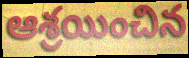
ఆశ్రయించిన